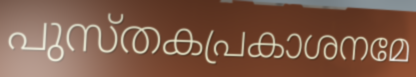
പുസ്തകപ്രകാശനമേ